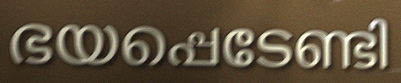
ഭയപ്പെടേണ്ടി